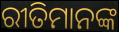
ରୀତିମାନଙ୍କ